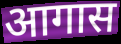
आगास